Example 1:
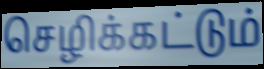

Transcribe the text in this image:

செழிக்கட்டும்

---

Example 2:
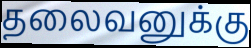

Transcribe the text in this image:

தலைவனுக்கு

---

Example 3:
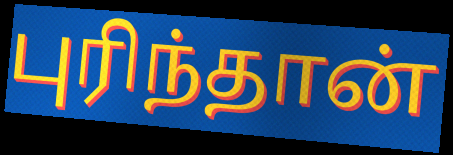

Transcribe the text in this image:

புரிந்தான்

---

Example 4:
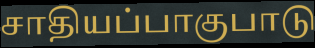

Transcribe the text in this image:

சாதியப்பாகுபாடு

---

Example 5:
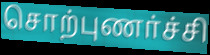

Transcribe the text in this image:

சொற்புணர்ச்சி